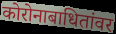
कोरोनाबाधितांवर